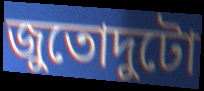
জুতোদুটো